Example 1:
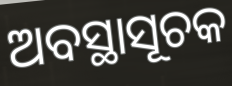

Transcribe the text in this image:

ଅବସ୍ଥାସୂଚକ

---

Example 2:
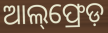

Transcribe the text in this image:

ଆଲ୍‌ଫ୍ରେଡ଼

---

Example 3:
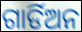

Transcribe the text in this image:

ଗାର୍ଡିଅନ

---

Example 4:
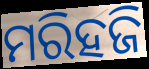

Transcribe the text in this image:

ମରିହଜି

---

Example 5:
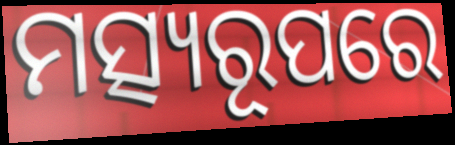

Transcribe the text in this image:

ମତ୍ସ୍ୟରୂପରେ